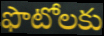
ఫొటోలకు